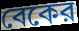
বেকের